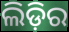
ଲିଡ଼ିର